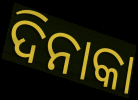
ଦିନାକା